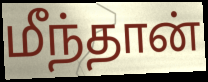
மீந்தான்